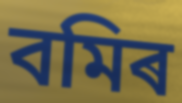
বমিৰ